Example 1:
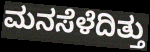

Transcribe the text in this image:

ಮನಸೆಳೆದಿತ್ತು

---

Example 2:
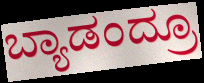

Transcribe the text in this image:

ಬ್ಯಾಡಂದ್ರೂ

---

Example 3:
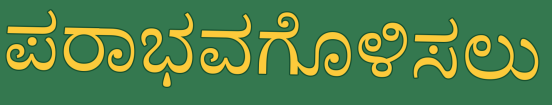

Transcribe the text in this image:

ಪರಾಭವಗೊಳಿಸಲು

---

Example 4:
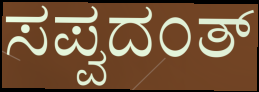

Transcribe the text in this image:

ಸಪ್ವದಂತ್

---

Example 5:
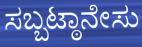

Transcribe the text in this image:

ಸಬ್ಬಟ್ಠಾನೇಸು